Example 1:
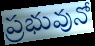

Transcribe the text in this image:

ప్రభువునో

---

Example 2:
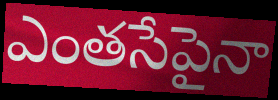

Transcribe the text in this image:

ఎంతసేపైనా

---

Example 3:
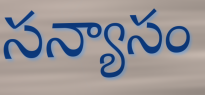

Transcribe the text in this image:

సన్యాసం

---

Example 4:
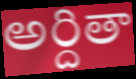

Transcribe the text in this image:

అర్దితా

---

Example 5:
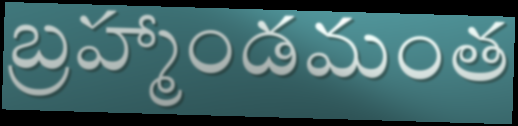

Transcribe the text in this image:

బ్రహ్మాండమంత